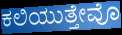
ಕಲಿಯುತ್ತೇವೊ